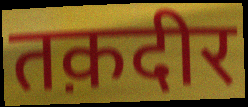
तक़दीर